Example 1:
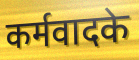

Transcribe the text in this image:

कर्मवादके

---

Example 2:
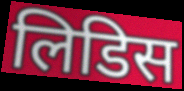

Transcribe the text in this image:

लिडिस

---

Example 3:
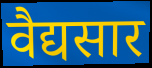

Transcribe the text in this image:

वैद्यसार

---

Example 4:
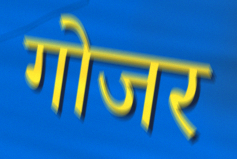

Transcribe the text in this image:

गोजर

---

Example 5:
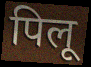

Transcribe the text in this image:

पिलू